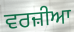
ਵਰਜ਼ੀਆ